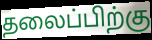
தலைப்பிற்கு